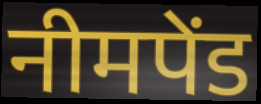
नीमपेंड